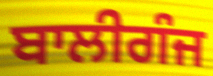
ਬਾਲੀਗੰਜ